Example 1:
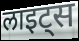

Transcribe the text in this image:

लाइट्स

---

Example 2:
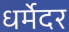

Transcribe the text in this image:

धर्मेदर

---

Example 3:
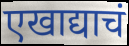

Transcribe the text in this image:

एखाद्याचं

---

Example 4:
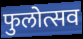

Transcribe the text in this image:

फुलोत्सव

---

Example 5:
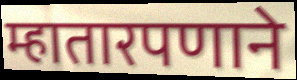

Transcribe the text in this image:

म्हातारपणाने